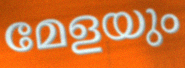
മേളയും